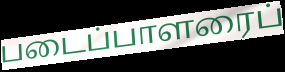
படைப்பாளரைப்